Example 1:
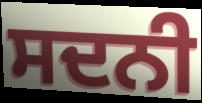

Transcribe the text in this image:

ਸਦਨੀ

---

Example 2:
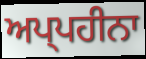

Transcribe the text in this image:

ਅਪ੍ਪਹੀਨਾ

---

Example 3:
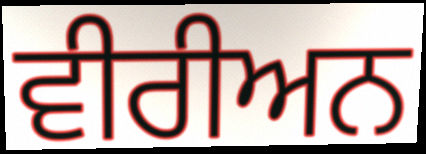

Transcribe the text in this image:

ਵੀਰੀਅਨ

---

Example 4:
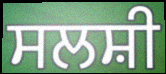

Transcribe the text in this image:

ਸਲਸ਼ੀ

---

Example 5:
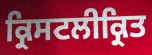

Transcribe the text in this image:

ਕ੍ਰਿਸਟਲੀਕ੍ਰਿਤ